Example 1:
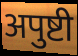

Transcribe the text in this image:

अपुष्टी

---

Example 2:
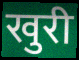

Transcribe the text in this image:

खुरी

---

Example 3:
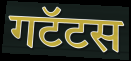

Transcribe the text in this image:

गटॅटस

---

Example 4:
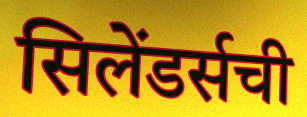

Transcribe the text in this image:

सिलेंडर्सची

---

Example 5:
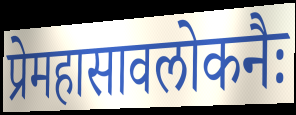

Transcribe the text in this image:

प्रेमहासावलोकनैः